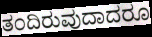
ತಂದಿರುವುದಾದರೂ